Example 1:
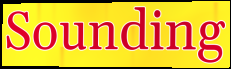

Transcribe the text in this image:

Sounding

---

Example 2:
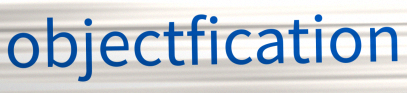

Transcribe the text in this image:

objectfication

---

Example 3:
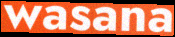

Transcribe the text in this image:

wasana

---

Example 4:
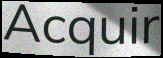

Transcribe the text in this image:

Acquir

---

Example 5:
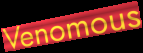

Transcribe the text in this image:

Venomous